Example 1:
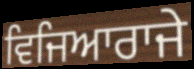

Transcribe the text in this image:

ਵਿਜਿਆਰਾਜੇ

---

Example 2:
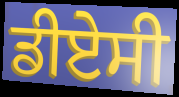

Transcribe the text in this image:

ਡੀਏਸੀ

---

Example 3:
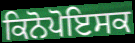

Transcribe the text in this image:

ਕਿਨੋਪੋਇਸਕ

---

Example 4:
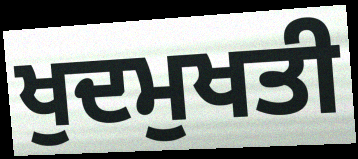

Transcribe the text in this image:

ਖੁਦਮੁਖਤੀ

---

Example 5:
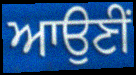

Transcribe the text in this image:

ਆਉਣੀੰ